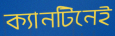
ক্যানটিনেই